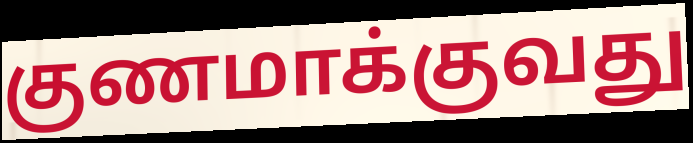
குணமாக்குவது